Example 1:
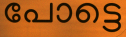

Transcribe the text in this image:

പോട്ടെ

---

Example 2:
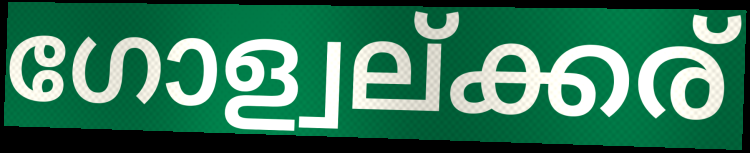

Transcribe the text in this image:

ഗോള്വല്ക്കര്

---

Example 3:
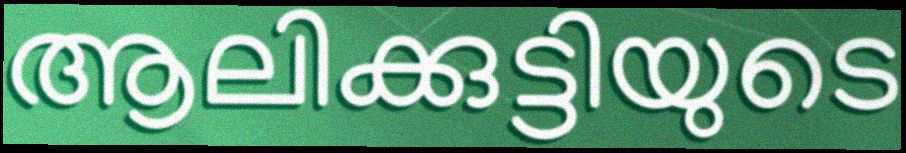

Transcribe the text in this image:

ആലിക്കുട്ടിയുടെ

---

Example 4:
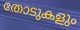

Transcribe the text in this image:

തോടുകളും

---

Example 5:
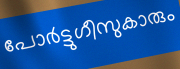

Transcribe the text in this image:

പോർട്ടുഗീസുകാരും